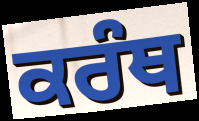
ਕਰੰਥ